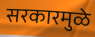
सरकारमुळे